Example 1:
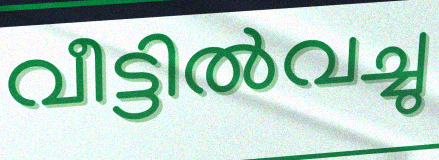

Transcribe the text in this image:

വീട്ടിൽവച്ചു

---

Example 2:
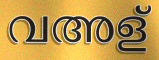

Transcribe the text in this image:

വഅള്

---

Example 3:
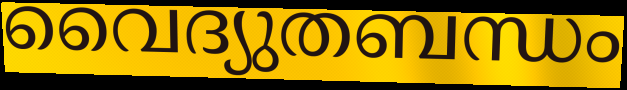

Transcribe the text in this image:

വൈദ്യുതബന്ധം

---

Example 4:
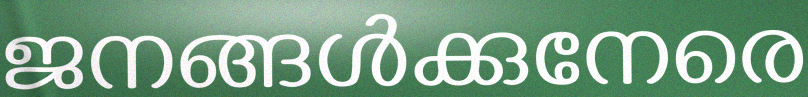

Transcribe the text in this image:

ജനങ്ങൾക്കുനേരെ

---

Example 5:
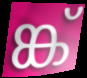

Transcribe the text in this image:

ങ്ക്